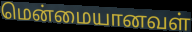
மென்மையானவள்